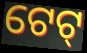
ଟେଟ୍